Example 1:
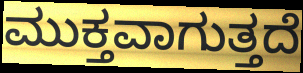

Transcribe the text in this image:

ಮುಕ್ತವಾಗುತ್ತದೆ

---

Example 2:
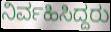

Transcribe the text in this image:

ನಿರ್ವಹಿಸಿದ್ದರು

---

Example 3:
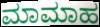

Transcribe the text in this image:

ಮಾಮಾಹ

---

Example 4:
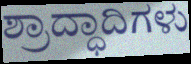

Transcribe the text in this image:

ಶ್ರಾದ್ಧಾದಿಗಳು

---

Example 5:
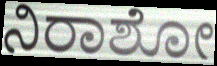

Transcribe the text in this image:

ನಿರಾಶೋ